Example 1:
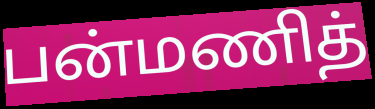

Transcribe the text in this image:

பன்மணித்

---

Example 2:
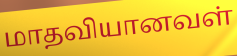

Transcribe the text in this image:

மாதவியானவள்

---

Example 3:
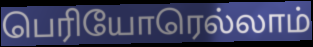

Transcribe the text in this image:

பெரியோரெல்லாம்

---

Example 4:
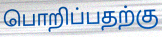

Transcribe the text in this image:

பொறிப்பதற்கு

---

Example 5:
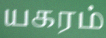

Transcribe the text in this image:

யகரம்